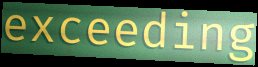
exceeding